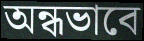
অন্ধভাবে